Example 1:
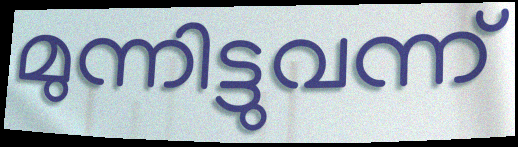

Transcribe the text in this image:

മുന്നിട്ടുവന്ന്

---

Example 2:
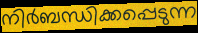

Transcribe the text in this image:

നിർബന്ധിക്കപ്പെടുന്ന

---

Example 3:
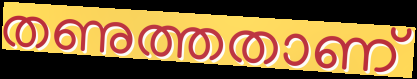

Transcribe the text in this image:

തണുത്തതാണ്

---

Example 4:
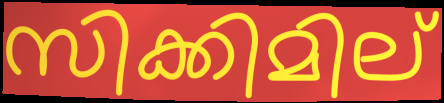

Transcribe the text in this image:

സിക്കിമില്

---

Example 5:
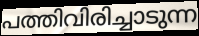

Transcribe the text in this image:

പത്തിവിരിച്ചാടുന്ന